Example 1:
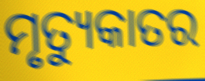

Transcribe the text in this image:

ମୃତ୍ୟୁକାତର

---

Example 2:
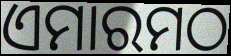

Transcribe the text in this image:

ଏମାରମଠ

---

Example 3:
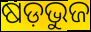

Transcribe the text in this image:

ଷଡ଼ଭୁଜ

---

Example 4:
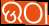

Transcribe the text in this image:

ଉଠା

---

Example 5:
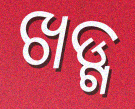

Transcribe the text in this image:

ଖଡ୍ଗ